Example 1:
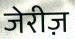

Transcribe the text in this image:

जेरीज़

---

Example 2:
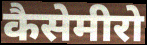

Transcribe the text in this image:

कैसेमीरो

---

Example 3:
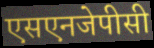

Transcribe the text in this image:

एसएनजेपीसी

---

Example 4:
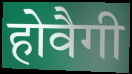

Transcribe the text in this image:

होवैगी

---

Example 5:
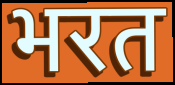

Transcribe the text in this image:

भरत